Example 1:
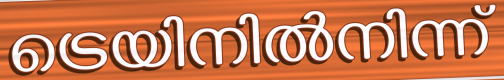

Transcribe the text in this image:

ട്രെയിനിൽനിന്ന്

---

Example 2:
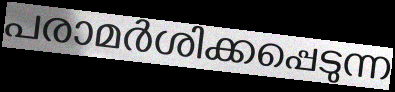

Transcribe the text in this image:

പരാമർശിക്കപ്പെടുന്ന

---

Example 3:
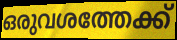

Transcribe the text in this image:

ഒരുവശത്തേക്ക്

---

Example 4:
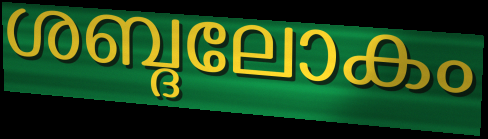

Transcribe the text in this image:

ശബ്ദലോകം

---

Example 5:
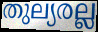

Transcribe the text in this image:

തുല്യരല്ല